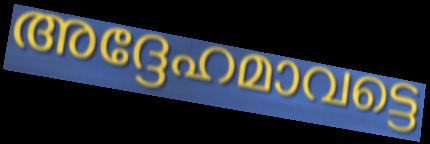
അദ്ദേഹമാവട്ടെ